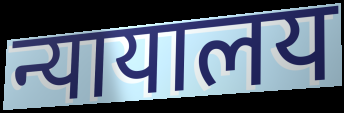
न्यायालय